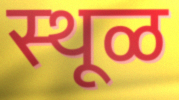
स्थूळ